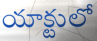
యాక్టులో